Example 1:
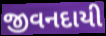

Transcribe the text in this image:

જીવનદાયી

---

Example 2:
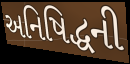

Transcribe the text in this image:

અનિષિદ્ધની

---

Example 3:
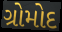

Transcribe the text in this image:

ગ્રોમોદ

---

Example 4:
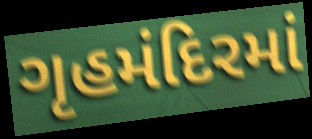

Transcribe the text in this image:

ગૃહમંદિરમાં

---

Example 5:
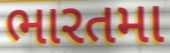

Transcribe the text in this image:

ભારતમા